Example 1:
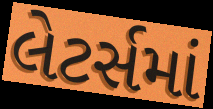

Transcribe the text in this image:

લેટર્સમાં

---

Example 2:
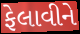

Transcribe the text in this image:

ફેલાવીને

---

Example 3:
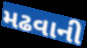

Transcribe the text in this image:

મઢવાની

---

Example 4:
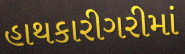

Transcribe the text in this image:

હાથકારીગરીમાં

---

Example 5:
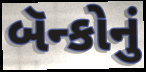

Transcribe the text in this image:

બૅન્કોનું